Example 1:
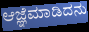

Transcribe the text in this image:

ಆಜ್ಞೆಮಾಡಿದನು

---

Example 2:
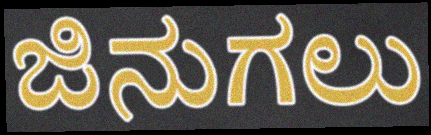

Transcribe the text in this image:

ಜಿನುಗಲು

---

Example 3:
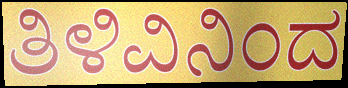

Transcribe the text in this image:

ತಿಳಿವಿನಿಂದ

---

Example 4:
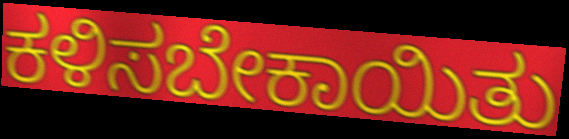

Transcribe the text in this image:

ಕಳಿಸಬೇಕಾಯಿತು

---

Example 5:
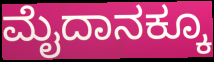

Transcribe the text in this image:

ಮೈದಾನಕ್ಕೂ